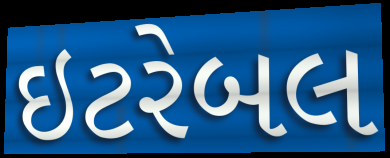
ઇટરેબલ